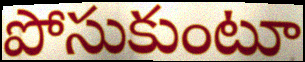
పోసుకుంటూ